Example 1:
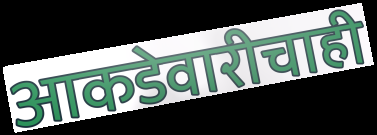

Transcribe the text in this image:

आकडेवारीचाही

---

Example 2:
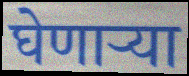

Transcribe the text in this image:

घेणार्‍या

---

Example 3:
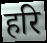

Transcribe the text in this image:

हरि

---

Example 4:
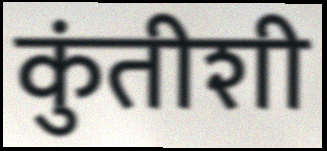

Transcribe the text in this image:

कुंतीशी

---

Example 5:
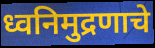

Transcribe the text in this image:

ध्वनिमुद्रणाचे